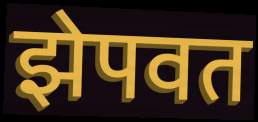
झेपवत